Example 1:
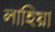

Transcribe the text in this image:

লাহিয়া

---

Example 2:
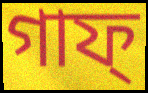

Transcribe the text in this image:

গাফ্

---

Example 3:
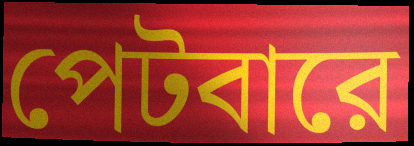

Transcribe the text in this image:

পেটবারে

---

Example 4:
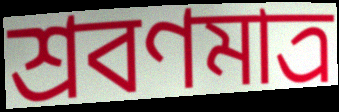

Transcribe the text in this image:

শ্রবণমাত্র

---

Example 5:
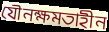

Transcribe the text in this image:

যৌনক্ষমতাহীন